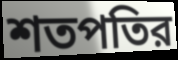
শতপতির